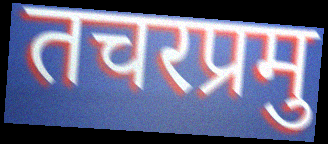
तचरप्रमु